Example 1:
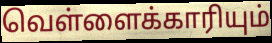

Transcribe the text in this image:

வெள்ளைக்காரியும்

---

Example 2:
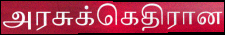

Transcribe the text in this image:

அரசுக்கெதிரான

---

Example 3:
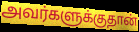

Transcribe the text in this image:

அவர்களுக்குதான்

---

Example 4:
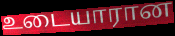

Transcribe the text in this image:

உடையாரான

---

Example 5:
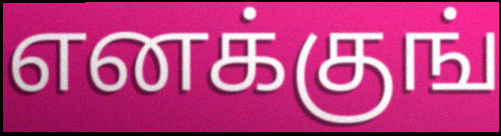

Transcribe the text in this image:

எனக்குங்